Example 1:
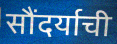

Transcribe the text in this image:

सौंदर्याची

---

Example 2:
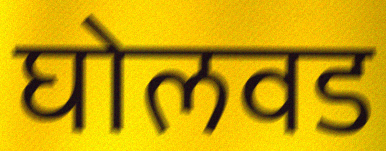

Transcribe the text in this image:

घोलवड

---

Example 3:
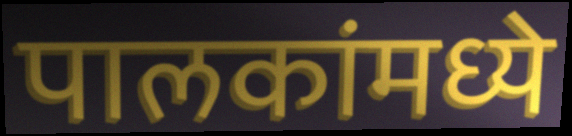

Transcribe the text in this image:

पालकांमध्ये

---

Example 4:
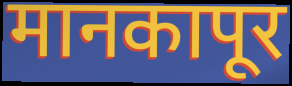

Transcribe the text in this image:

मानकापूर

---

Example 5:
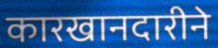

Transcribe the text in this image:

कारखानदारीने